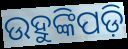
ଉହୁଙ୍କିପଡ଼ି